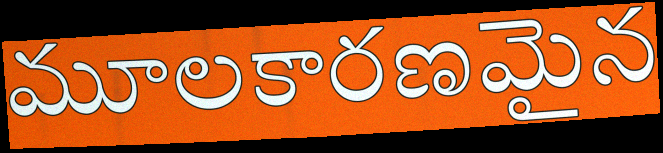
మూలకారణమైన